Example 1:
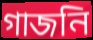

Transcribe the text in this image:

গাজনি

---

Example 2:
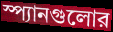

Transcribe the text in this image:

স্প্যানগুলোর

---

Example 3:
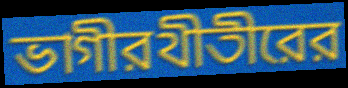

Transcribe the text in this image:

ভাগীরথীতীরের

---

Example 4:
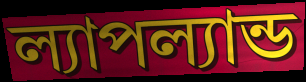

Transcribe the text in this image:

ল্যাপল্যান্ড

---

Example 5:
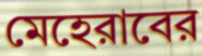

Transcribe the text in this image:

মেহেরাবের